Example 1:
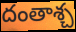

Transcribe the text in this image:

దంతాశ్చ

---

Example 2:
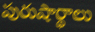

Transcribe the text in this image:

పురుషార్థాలు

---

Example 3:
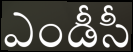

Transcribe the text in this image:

ఎండీసీ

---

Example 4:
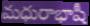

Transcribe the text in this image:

మధురాభాషీ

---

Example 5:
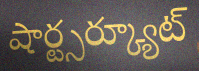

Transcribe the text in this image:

షార్ట్సర్క్యూట్